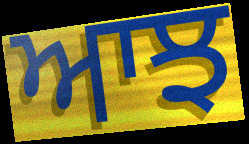
ਆਝ